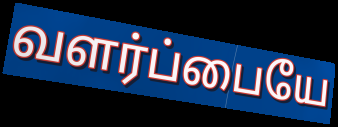
வளர்ப்பையே